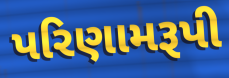
પરિણામરૂપી